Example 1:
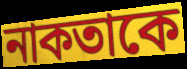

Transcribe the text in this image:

নাকতাকে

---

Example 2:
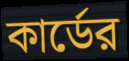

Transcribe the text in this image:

কার্ডের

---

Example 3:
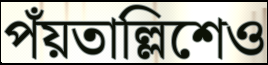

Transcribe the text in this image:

পঁয়তাল্লিশেও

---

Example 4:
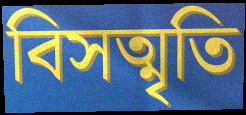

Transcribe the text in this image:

বিসত্মৃতি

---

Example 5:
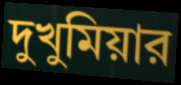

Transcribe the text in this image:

দুখুমিয়ার